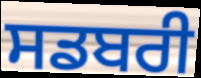
ਸਡਬਰੀ